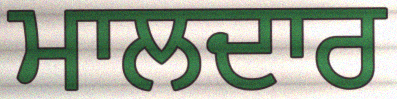
ਮਾਲਦਾਰ